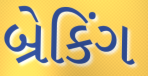
બ્રેકિંગ